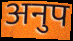
अनुप